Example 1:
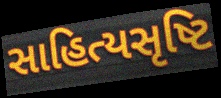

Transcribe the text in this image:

સાહિત્યસૃષ્ટિ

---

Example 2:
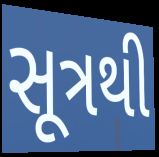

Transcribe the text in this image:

સૂત્રથી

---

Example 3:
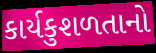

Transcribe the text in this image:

કાર્યકુશળતાનો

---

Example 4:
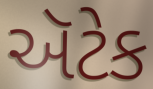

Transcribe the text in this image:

ઍટેક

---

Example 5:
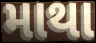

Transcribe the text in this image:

માથા